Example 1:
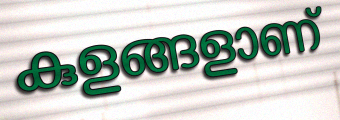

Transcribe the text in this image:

കുളങ്ങളാണ്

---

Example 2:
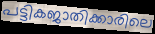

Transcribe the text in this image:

പട്ടികജാതിക്കാരിലെ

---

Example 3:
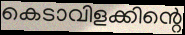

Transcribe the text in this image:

കെടാവിളക്കിന്റെ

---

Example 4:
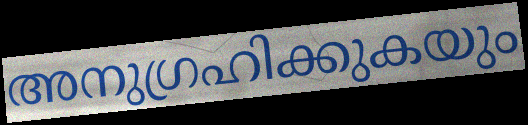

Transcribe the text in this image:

അനുഗ്രഹിക്കുകയും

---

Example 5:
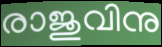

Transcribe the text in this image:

രാജുവിനു